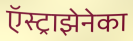
ऍस्ट्राझेनेका